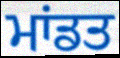
ਮਾਂਡਤ